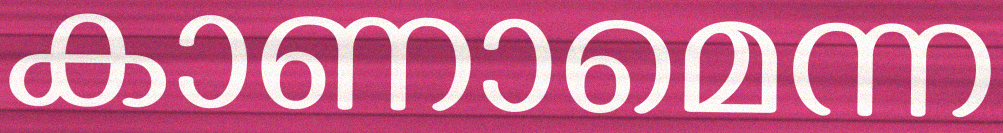
കാണാമെന്ന